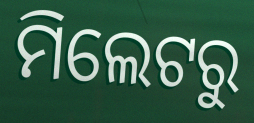
ମିଲେଟରୁ